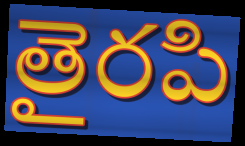
తైరపి